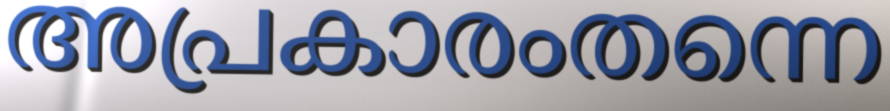
അപ്രകാരംതന്നെ